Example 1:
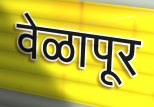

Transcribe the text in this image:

वेळापूर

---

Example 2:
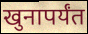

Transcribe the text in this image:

खुनापर्यंत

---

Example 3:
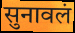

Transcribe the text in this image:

सुनावलं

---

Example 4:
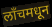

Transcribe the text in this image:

लॉंचमधून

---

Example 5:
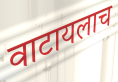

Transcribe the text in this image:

वाटायलाच